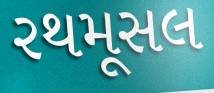
રથમૂસલ